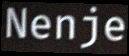
Nenje